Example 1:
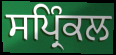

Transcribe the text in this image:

ਸਪ੍ਰਿੰਕਲ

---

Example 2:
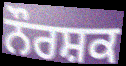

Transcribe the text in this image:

ਨੌਰਸ਼ਕ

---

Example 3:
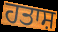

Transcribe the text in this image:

ਹਤਾਸ਼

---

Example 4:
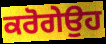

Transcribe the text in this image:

ਕਰੋਗੇਉਹ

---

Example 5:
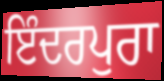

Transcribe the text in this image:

ਇੰਦਰਪੁਰਾ